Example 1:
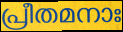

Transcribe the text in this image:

പ്രീതമനാഃ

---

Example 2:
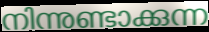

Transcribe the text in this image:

നിന്നുണ്ടാക്കുന്ന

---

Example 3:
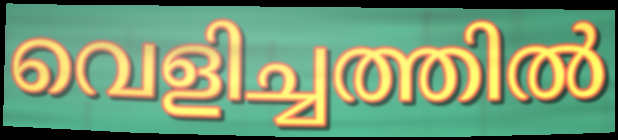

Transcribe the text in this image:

വെളിച്ചത്തിൽ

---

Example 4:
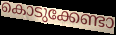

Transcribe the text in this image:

കൊടുക്കേണ്ടാ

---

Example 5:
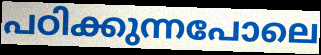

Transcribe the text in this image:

പഠിക്കുന്നപോലെ